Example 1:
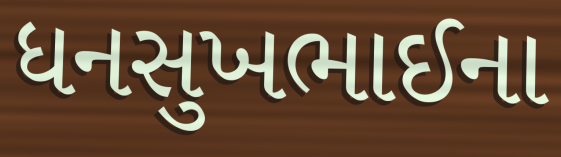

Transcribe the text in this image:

ધનસુખભાઈના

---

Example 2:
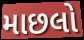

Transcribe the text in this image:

માછલો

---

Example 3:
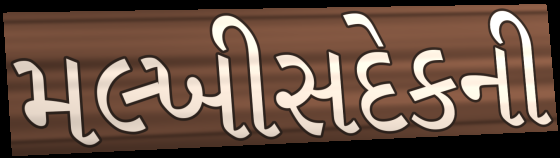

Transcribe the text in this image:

મલ્ખીસદેકની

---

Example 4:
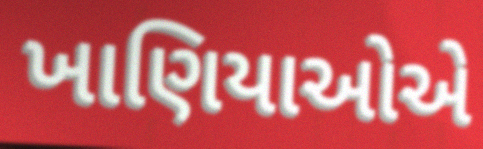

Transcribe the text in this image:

ખાણિયાઓએ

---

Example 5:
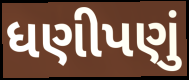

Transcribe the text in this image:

ધણીપણું